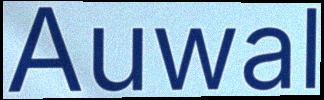
Auwal